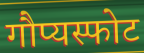
गौप्यस्फोट